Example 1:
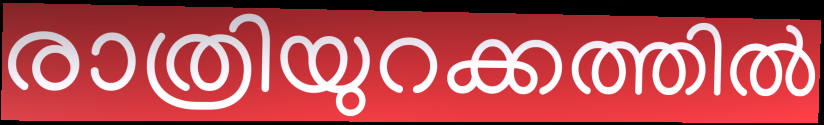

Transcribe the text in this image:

രാത്രിയുറക്കത്തിൽ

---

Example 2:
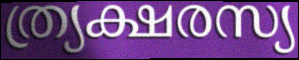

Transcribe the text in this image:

ത്ര്യക്ഷരസ്യ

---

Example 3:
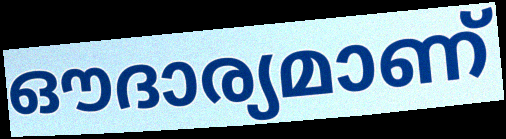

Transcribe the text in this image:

ഔദാര്യമാണ്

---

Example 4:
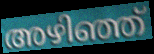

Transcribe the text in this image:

അഴിഞ്ഞ്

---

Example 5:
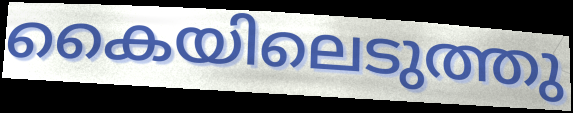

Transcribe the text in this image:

കൈയിലെടുത്തു